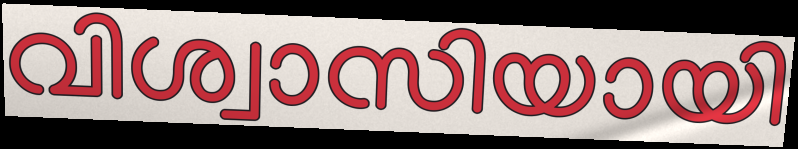
വിശ്വാസിയായി